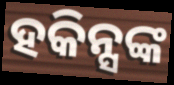
ହକିନ୍ସଙ୍କ